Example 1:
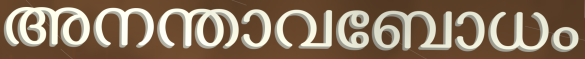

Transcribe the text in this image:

അനന്താവബോധം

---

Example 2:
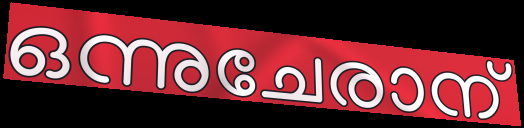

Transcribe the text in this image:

ഒന്നുചേരാന്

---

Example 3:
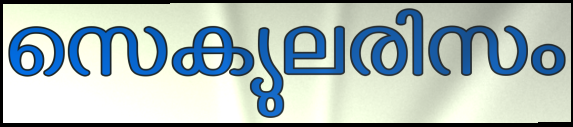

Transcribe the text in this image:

സെക്യുലരിസം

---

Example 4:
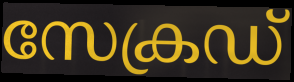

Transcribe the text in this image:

സേക്രഡ്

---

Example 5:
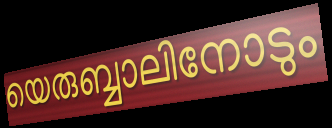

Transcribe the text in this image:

യെരുബ്ബാലിനോടും